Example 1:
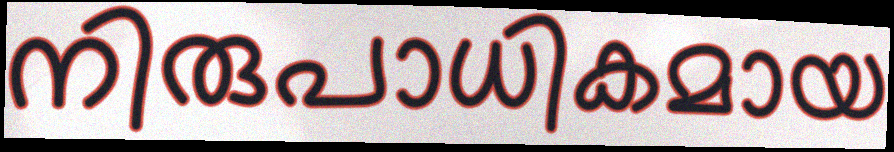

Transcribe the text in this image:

നിരുപാധികമായ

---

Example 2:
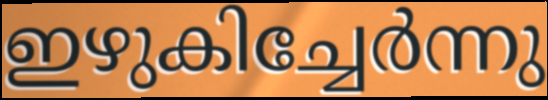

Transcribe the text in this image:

ഇഴുകിച്ചേർന്നു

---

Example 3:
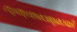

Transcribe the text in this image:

സ്വതന്ത്രരാജ്യമായി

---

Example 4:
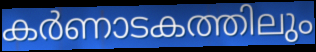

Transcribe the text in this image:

കർണാടകത്തിലും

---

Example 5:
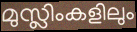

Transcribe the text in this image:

മുസ്ലിംകളിലും